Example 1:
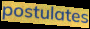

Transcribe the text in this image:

postulates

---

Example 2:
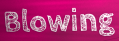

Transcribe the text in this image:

Blowing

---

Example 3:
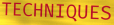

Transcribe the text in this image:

TECHNIQUES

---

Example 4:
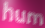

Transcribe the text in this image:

hum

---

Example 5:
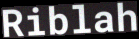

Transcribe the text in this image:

Riblah